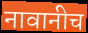
नावानीच